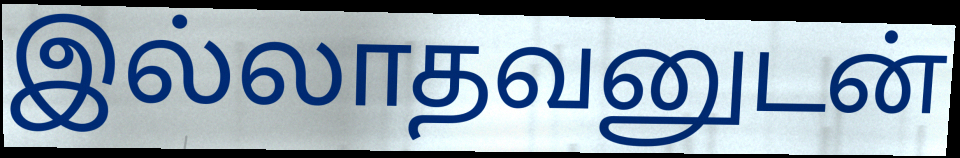
இல்லாதவனுடன்